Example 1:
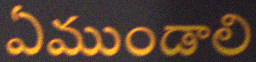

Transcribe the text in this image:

ఏముండాలి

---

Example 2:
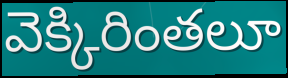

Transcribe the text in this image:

వెక్కిరింతలూ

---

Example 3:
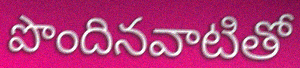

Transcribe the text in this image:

పొందినవాటితో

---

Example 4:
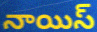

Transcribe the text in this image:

నాయిస్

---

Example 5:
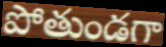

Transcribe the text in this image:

పోతుండగా